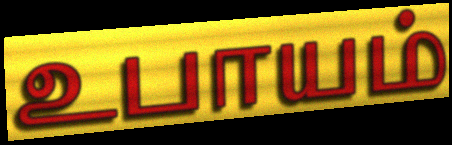
உபாயம்